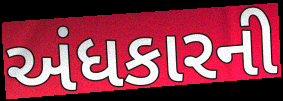
અંધકારની